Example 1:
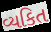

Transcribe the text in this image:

વ્યકિત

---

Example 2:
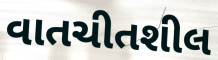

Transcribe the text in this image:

વાતચીતશીલ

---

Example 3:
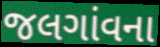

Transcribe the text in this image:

જલગાંવના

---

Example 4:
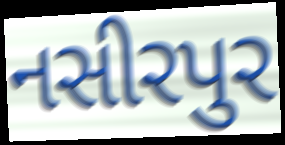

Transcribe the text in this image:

નસીરપુર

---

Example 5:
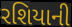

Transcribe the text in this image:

રશિયાની